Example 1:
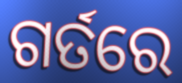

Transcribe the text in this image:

ଗର୍ତରେ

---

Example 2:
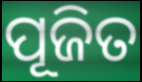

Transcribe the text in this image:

ପୂଜିତ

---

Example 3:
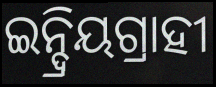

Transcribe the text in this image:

ଇନ୍ଦ୍ରିୟଗ୍ରାହୀ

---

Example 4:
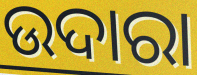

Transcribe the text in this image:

ଉଦାରା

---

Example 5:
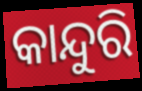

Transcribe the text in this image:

କାନ୍ଦୁରି